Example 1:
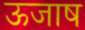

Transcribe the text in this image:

ऊजाष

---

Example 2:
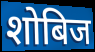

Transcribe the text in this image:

शोबिज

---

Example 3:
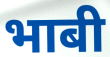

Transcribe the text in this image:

भाबी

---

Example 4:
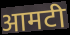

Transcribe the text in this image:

आमटी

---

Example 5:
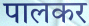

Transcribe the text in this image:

पालकर